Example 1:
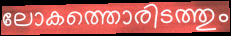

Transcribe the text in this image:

ലോകത്തൊരിടത്തും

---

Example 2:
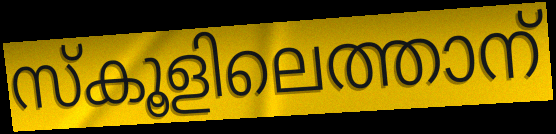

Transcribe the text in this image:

സ്കൂളിലെത്താന്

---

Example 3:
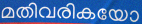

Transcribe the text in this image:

മതിവരികയോ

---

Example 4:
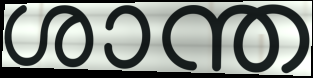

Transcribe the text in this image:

ശാന്ത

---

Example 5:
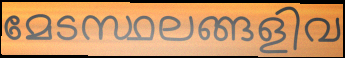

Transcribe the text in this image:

മേടസ്ഥലങ്ങളിവ